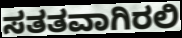
ಸತತವಾಗಿರಲಿ